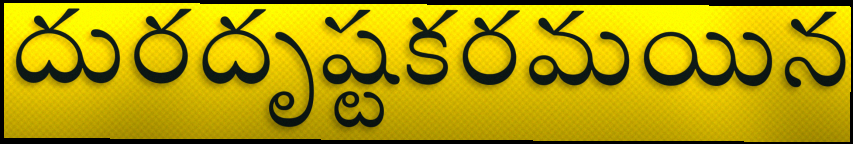
దురదృష్టకరమయిన